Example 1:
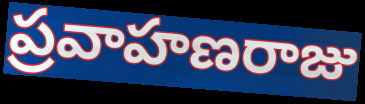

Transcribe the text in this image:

ప్రవాహణరాజు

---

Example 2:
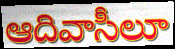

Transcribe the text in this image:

ఆదివాసీలూ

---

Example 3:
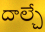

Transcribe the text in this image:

దాల్చే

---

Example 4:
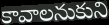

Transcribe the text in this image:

కావాలనుకుని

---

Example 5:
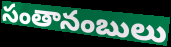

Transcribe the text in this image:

సంతానంబులు